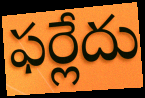
ఫర్లేదు